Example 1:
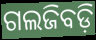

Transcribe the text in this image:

ଗଲଜିବଡ଼ି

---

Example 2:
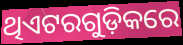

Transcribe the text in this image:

ଥିଏଟରଗୁଡ଼ିକରେ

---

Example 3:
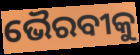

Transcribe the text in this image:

ଭୈରବୀକୁ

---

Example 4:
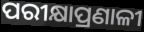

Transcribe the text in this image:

ପରୀକ୍ଷାପ୍ରଣାଳୀ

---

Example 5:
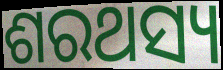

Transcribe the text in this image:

ଶରଥସ୍ୟ